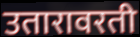
उतारावरती